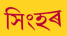
সিংহৰ